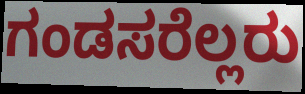
ಗಂಡಸರೆಲ್ಲರು